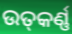
ଉତ୍‍କର୍ଣ୍ଣ